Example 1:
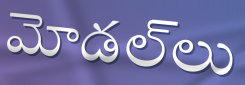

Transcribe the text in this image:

మోడల్‌లు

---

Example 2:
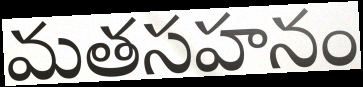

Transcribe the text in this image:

మతసహనం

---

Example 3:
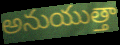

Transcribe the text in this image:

అనుయుత్తా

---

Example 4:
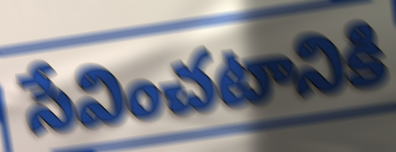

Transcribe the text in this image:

సేవించటానికి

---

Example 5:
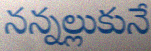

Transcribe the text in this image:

నన్నల్లుకునే